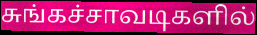
சுங்கச்சாவடிகளில்